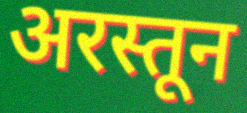
अरस्तून